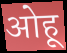
ओहू